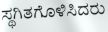
ಸ್ಥಗಿತಗೊಳಿಸಿದರು